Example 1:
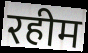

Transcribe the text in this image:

रहीम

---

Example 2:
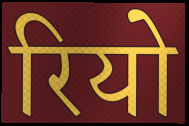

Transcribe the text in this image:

रियो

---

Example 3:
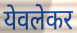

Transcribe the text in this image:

येवलेकर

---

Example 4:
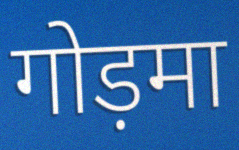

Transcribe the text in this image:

गोड़मा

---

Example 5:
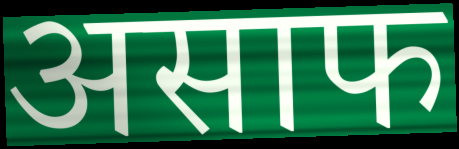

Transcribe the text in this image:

असाफ